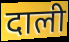
दाली